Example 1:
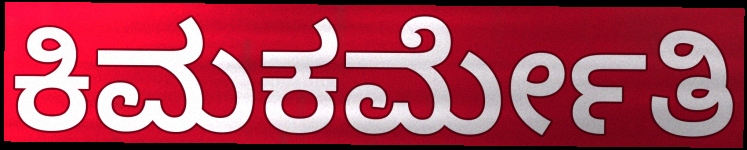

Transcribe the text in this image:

ಕಿಮಕರ್ಮೇತಿ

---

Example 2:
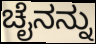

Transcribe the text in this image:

ಚೈನನ್ನು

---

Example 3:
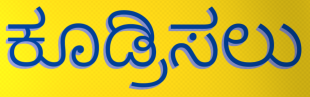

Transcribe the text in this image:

ಕೂಡ್ರಿಸಲು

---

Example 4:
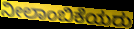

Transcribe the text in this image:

ನೀಲಾಂಬಿಕೆಯರು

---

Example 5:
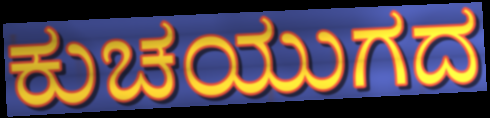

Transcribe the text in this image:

ಕುಚಯುಗದ